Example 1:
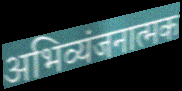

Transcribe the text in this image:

अभिव्यंजनात्मक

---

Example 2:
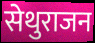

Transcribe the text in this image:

सेथुराजन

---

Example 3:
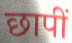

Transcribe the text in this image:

छापीं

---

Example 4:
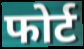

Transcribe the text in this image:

फोर्ट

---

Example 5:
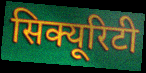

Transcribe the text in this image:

सिक्यूरिटी